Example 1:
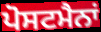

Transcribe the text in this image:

ਪੋਸਟਮੈਨਾਂ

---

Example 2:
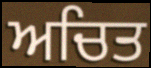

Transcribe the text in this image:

ਅਚਿਤ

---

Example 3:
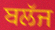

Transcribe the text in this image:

ਬਲੱਜ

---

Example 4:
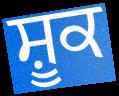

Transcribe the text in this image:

ਸ਼ੂਕ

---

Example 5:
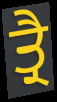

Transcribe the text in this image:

ਤ੍ਰੈ